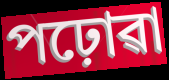
পঢ়োৱা